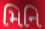
મિનિ